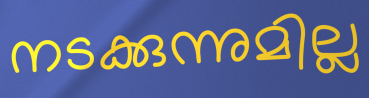
നടക്കുന്നുമില്ല